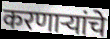
करणाऱ्यांचे